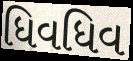
ધિવધિવ